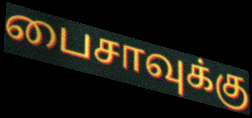
பைசாவுக்கு